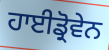
ਹਾਈਡ੍ਰੋਵੇਨ